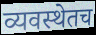
व्यवस्थेतच